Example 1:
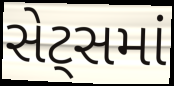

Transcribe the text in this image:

સેટ્સમાં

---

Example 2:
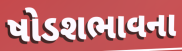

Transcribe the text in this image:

ષોડશભાવના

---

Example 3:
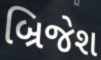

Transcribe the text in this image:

બ્રિજેશ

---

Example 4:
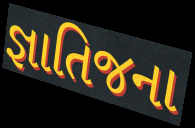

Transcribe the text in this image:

જ્ઞાતિજના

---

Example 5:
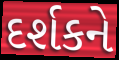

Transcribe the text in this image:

દર્શકને